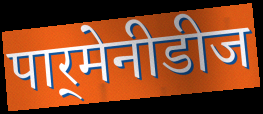
पार्मेनीडीज